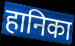
हानिका